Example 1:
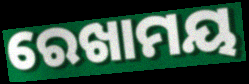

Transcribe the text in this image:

ରେଖାମୟ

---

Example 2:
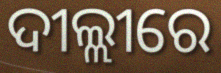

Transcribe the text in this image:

ଦୀଲ୍ଲୀରେ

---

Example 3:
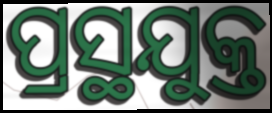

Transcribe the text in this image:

ପ୍ରସ୍ଥଯୁକ୍ତ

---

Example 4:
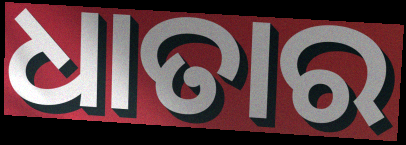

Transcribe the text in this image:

ଧାତାର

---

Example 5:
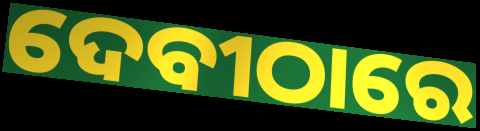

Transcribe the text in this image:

ଦେବୀଠାରେ